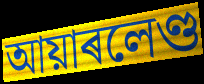
আয়াৰলেণ্ড